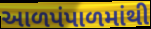
આળપંપાળમાંથી